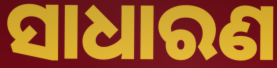
ସାଧାରଣ